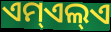
ଏମ୍ଏଲ୍ଏ